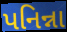
પનિન્ના